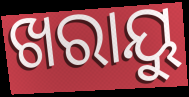
ଖରାୟୁ